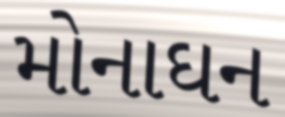
મોનાઘન